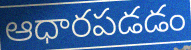
ఆధారపడడం